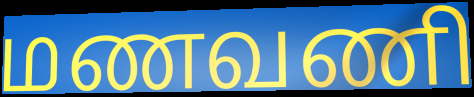
மணவணி